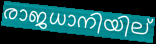
രാജധാനിയില്